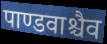
पाण्डवाश्चैव